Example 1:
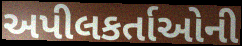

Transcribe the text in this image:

અપીલકર્તાઓની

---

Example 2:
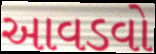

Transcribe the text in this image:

આવડવો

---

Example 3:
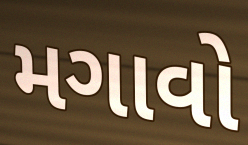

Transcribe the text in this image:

મગાવો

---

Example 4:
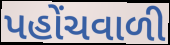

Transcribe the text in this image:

પહોંચવાળી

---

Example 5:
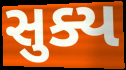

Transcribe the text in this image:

સુક્ય